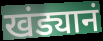
खंड्यानं